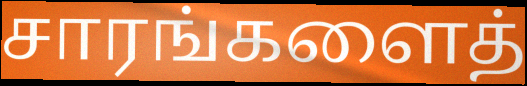
சாரங்களைத்